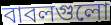
বাবলগুলো